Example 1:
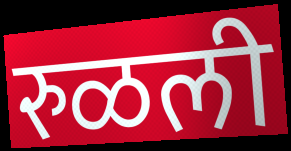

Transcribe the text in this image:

रुळली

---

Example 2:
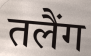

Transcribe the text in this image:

तलैंग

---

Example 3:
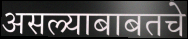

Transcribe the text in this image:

असल्याबाबतचे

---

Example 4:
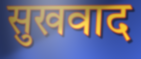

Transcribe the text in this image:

सुखवाद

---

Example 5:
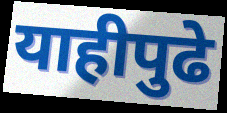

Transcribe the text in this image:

याहीपुढे